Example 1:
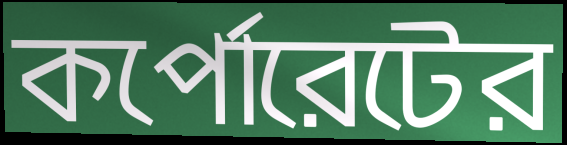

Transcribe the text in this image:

কর্পোরেটের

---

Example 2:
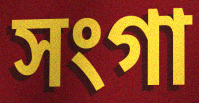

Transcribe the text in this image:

সংগা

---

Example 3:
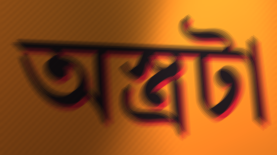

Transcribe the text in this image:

অস্ত্রটা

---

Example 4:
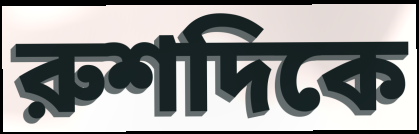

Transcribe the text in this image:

রুশদিকে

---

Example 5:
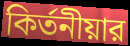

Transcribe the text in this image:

কির্তনীয়ার